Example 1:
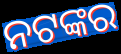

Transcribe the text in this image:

ନଟଙ୍କର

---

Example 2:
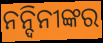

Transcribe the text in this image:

ନନ୍ଦିନୀଙ୍କର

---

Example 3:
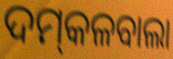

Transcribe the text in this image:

ଦମ୍‍କଳବାଲା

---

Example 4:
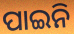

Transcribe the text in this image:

ପାଇନି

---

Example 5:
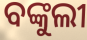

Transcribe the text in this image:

ବଙ୍କୁଲୀ